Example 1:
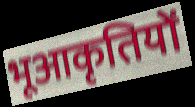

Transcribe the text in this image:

भूआकृतियों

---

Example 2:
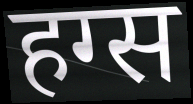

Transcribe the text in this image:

हग्स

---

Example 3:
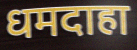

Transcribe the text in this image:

धमदाहा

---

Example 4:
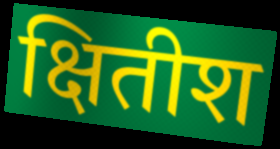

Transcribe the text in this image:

क्षितीश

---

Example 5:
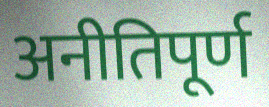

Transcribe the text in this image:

अनीतिपूर्ण